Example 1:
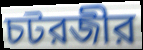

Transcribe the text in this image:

চটরজীর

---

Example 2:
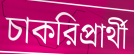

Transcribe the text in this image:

চাকরিপ্রার্থী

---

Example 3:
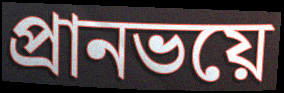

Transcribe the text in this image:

প্রানভয়ে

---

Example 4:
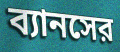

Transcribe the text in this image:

ব্যানসের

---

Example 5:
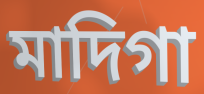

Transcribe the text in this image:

মাদিগা